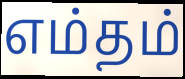
எம்தம்